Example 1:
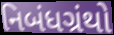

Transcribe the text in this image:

નિબંધગ્રંથો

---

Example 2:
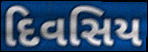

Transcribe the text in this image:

દિવસિય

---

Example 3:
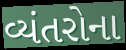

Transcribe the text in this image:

વ્યંતરોના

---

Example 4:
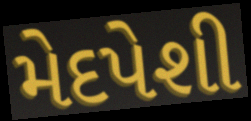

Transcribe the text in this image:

મેદપેશી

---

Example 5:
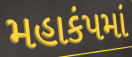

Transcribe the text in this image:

મહાકંપમાં